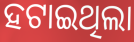
ହଟାଇଥିଲା